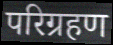
परिग्रहण